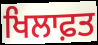
ਖਿਲਾਫ਼ਤ